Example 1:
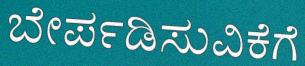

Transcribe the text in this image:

ಬೇರ್ಪಡಿಸುವಿಕೆಗೆ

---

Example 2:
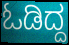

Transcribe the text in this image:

ಓಡಿದ್ದ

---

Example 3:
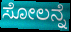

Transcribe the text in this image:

ಸೋಲನ್ನೆ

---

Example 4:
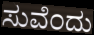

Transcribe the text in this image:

ಸುವೆಂದು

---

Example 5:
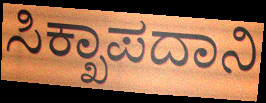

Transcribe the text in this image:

ಸಿಕ್ಖಾಪದಾನಿ